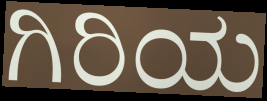
ಗಿರಿಯ